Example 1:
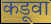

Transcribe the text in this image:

कडूवा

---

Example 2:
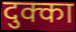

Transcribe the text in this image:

दुक्‍का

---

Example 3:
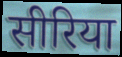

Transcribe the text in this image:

सीरिया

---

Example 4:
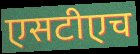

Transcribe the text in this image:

एसटीएच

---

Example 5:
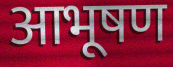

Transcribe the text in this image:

आभूषण